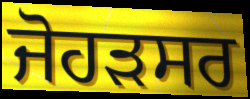
ਜੋਹੜਸਰ